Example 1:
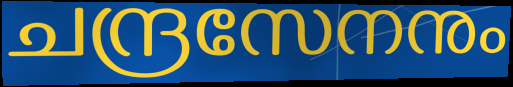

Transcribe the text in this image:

ചന്ദ്രസേനനും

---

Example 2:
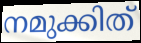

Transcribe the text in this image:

നമുക്കിത്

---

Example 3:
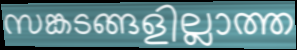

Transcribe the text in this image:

സങ്കടങ്ങളില്ലാത്ത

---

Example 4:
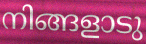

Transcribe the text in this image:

നിങ്ങളാടു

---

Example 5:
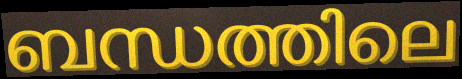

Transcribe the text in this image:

ബന്ധത്തിലെ